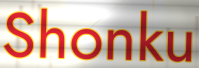
Shonku